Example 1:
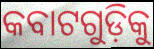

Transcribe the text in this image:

କବାଟଗୁଡ଼ିକୁ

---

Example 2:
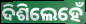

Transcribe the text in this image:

ଦିଶିଲେହେଁ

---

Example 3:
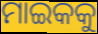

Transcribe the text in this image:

ମାଇକକୁ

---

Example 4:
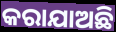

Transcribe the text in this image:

କରାଯାଅଛି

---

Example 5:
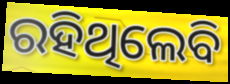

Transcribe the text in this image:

ରହିଥିଲେବି